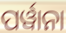
ପର୍ୱାନା